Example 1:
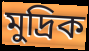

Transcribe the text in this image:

মুদ্রিক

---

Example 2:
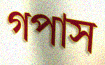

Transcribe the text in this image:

গপাস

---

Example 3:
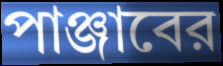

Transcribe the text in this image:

পাঞ্জাবের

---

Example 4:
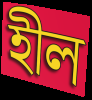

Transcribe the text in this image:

হীল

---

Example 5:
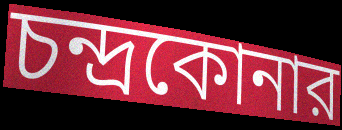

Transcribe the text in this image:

চন্দ্রকোনার